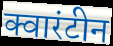
क्वारंटीन